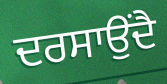
ਦਰਸਾਉਂਦੈ